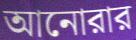
আনোরার